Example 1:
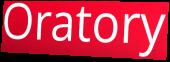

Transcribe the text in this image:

Oratory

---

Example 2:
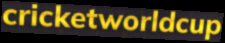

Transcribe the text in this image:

cricketworldcup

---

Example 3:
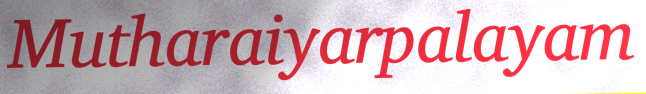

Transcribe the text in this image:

Mutharaiyarpalayam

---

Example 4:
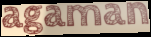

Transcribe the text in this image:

agaman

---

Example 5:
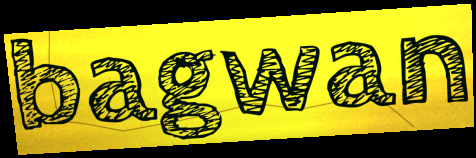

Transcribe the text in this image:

bagwan